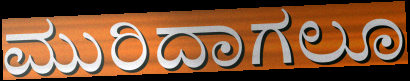
ಮುರಿದಾಗಲೂ